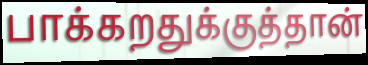
பாக்கறதுக்குத்தான்